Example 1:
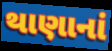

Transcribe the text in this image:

થાણાનાં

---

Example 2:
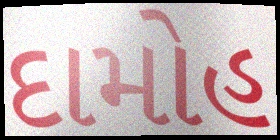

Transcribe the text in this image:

દામોહ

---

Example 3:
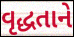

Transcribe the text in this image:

વૃદ્ધતાને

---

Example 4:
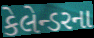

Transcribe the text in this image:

કેલેન્ડરના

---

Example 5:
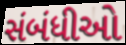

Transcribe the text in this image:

સંબંધીઓ